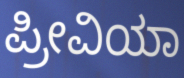
ಪ್ರೀವಿಯಾ